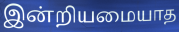
இன்றியமையாத